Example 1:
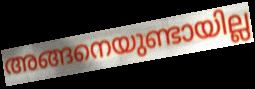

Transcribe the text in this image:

അങ്ങനെയുണ്ടായില്ല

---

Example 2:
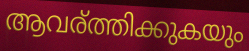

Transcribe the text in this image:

ആവര്ത്തിക്കുകയും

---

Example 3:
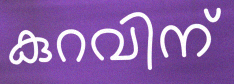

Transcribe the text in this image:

കുറവിന്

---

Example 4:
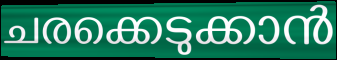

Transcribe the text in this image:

ചരക്കെടുക്കാൻ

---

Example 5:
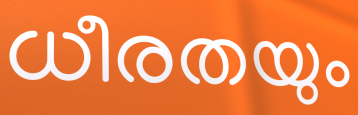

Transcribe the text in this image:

ധീരതയും